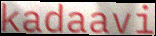
kadaavi